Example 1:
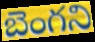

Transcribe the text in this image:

బెంగని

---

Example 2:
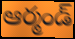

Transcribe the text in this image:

ఆర్మండ్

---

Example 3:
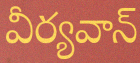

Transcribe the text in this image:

వీర్యవాన్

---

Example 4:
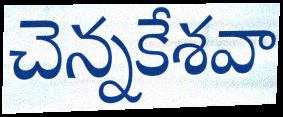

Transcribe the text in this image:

చెన్నకేశవా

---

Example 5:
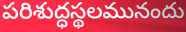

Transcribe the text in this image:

పరిశుద్ధస్థలమునందు